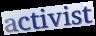
activist